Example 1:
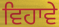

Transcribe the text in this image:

ਵਿਹਾਵੇ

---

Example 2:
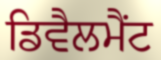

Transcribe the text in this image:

ਡਿਵੈਲਮੈਂਟ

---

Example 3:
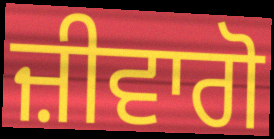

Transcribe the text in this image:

ਜ਼ੀਵਾਗੋ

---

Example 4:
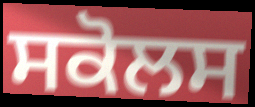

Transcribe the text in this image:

ਸਕੋਲਸ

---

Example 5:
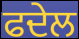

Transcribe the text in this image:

ਫਦੇਲ